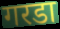
गरडा